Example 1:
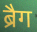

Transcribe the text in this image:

ब्रैग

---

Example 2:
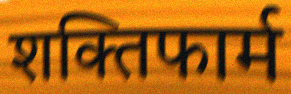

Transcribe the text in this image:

शक्तिफार्म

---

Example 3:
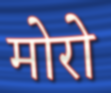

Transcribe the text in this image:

मोरो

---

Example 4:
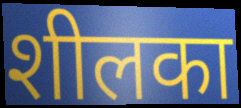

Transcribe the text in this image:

शीलका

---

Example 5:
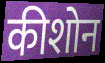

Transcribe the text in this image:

कीशोन